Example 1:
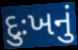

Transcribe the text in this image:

દુઃખનું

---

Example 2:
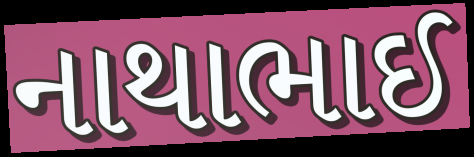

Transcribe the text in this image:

નાથાભાઈ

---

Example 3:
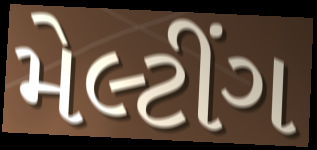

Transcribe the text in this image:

મેલ્ટીંગ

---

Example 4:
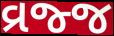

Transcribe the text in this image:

વ્રજ્જ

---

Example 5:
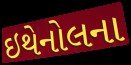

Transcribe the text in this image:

ઇથેનોલના